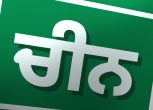
ਚੀਨ